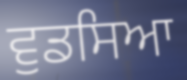
ਵੁਡਸਿਆ